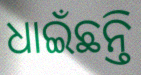
ଧାଇଁଛନ୍ତି